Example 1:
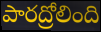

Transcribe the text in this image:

పారద్రోలింది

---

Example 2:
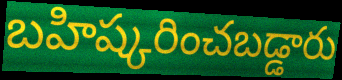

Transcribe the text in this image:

బహిష్కరించబడ్డారు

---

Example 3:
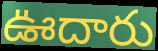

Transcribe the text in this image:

ఊదారు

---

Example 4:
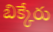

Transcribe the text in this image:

బిక్కేరు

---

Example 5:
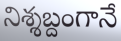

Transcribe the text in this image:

నిశ్శబ్దంగానే